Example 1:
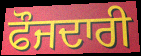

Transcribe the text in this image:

ਫੌਜਦਾਰੀ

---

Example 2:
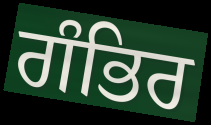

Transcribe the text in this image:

ਗੰਭਿਰ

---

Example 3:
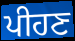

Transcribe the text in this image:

ਪੀਹਣ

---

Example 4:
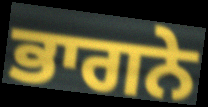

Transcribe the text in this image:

ਭਾਗਨੇ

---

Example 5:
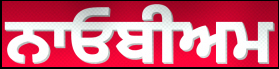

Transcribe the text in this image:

ਨਾਓਬੀਅਮ